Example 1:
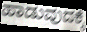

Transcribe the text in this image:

ಹಾಡುವುದಕ್ಕೆ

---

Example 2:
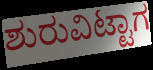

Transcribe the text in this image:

ಶುರುವಿಟ್ಟಾಗ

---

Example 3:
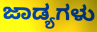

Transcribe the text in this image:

ಜಾಡ್ಯಗಳು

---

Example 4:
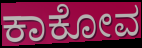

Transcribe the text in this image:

ಕಾಕೋವ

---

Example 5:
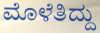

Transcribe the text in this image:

ಮೊಳೆತಿದ್ದು